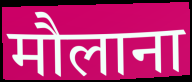
मौलाना